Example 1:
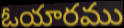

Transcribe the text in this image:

ఓయారము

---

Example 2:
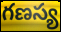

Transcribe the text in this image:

గణస్య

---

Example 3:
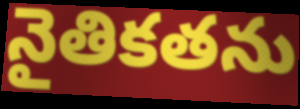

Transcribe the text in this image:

నైతికతను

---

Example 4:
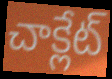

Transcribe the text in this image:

చాక్లేట్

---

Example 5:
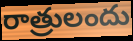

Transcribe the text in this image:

రాత్రులందు